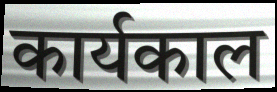
कार्यकाल